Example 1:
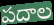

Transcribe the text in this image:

పదాల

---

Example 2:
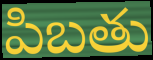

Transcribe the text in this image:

పిబతు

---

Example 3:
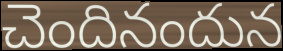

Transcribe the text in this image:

చెందినందున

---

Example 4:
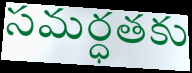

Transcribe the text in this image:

సమర్ధతకు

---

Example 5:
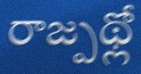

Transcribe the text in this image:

రాజ్పథ్లో